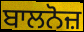
ਬਾਲਨੋਜ਼